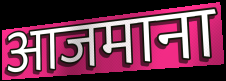
आजमाना